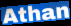
Athan